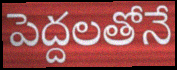
పెద్దలతోనే